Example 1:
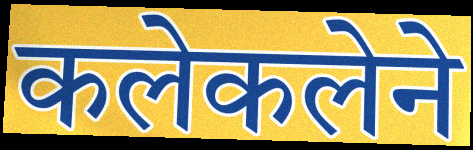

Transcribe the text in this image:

कलेकलेने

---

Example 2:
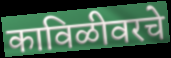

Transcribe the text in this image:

काविळीवरचे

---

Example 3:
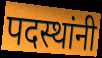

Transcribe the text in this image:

पदस्थांनी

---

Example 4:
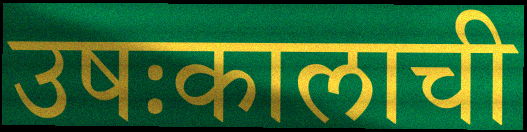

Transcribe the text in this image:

उषःकालाची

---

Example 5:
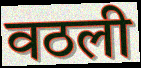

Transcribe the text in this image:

वठली